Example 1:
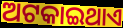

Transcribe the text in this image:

ଅଟକାଇଥାଏ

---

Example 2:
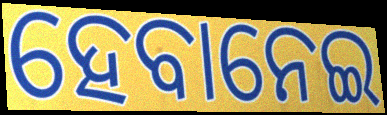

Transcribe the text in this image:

ହେବାନେଇ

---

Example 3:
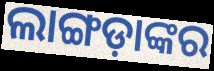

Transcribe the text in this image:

ଲାଙ୍ଗଡ଼ାଙ୍କର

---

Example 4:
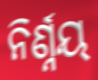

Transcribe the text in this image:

ନିର୍ଣ୍ନୟ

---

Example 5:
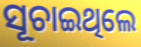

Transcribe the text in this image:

ସୂଚାଇଥିଲେ